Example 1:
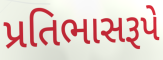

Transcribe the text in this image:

પ્રતિભાસરૂપે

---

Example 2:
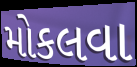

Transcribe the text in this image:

મોકલવા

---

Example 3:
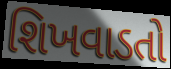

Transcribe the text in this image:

શિખવાડતો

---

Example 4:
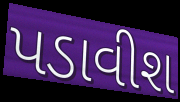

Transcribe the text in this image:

પડાવીશ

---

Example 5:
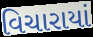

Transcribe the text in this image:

વિચારાયાં